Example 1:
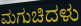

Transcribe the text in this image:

ಮಗುಚಿದಳು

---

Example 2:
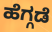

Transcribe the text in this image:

ಹೆಗ್ಗಡೆ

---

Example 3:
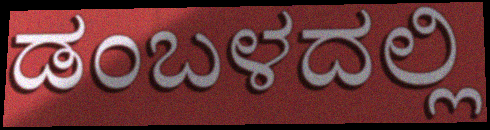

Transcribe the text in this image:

ಡಂಬಳದಲ್ಲಿ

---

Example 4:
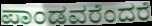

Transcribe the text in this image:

ಪಾಂಡವರೆಂದರೆ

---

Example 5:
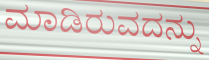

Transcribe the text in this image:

ಮಾಡಿರುವದನ್ನು